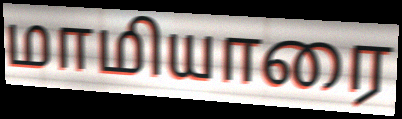
மாமியாரை